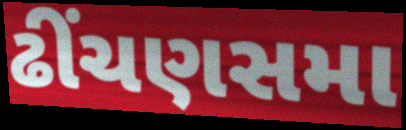
ઢીંચણસમા